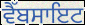
ਵੈੱਬਸਾਇਟ